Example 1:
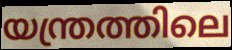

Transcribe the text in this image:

യന്ത്രത്തിലെ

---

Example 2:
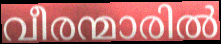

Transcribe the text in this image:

വീരന്മാരിൽ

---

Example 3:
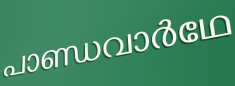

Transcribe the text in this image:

പാണ്ഡവാർഥേ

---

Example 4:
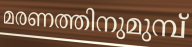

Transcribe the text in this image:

മരണത്തിനുമുമ്പ്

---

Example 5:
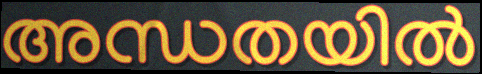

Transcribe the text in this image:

അന്ധതയിൽ